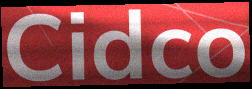
Cidco